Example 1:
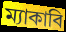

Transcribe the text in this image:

ম্যাকাবি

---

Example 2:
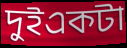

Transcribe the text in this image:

দুইএকটা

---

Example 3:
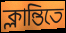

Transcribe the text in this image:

ক্লান্তিতে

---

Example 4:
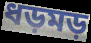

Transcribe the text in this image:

ধড়মড়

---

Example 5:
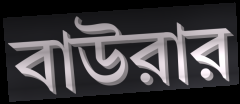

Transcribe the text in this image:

বাউরার